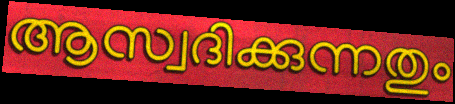
ആസ്വദിക്കുന്നതും